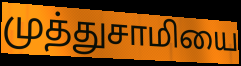
முத்துசாமியை